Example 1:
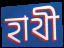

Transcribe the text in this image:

হাথী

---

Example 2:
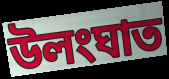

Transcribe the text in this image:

উলংঘাত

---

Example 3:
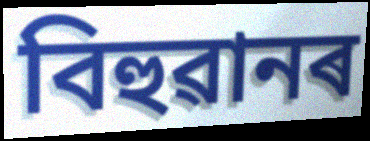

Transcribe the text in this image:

বিহুৱানৰ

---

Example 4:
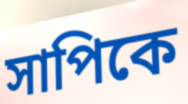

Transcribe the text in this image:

সাপিকে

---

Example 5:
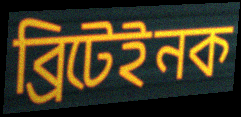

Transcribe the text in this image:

ব্ৰিটেইনক